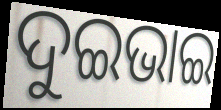
ଦୁଇଭାଇ